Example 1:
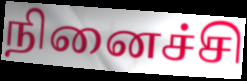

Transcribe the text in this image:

நினைச்சி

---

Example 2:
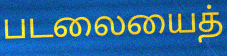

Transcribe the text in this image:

படலையைத்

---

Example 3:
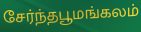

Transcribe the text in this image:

சேர்ந்தபூமங்கலம்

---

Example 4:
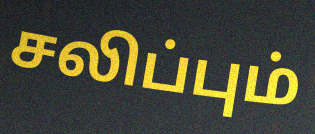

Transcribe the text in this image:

சலிப்பும்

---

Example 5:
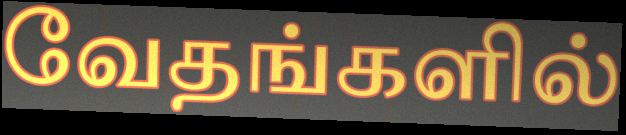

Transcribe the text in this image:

வேதங்களில்